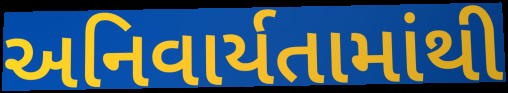
અનિવાર્યતામાંથી